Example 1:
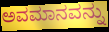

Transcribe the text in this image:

ಅವಮಾನವನ್ನು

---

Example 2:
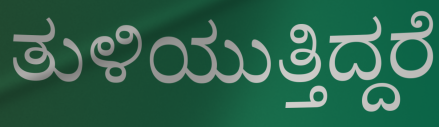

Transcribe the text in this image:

ತುಳಿಯುತ್ತಿದ್ದರೆ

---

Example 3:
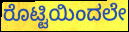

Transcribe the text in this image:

ರೊಟ್ಟಿಯಿಂದಲೇ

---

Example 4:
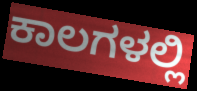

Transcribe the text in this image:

ಕಾಲಗಳಲ್ಲಿ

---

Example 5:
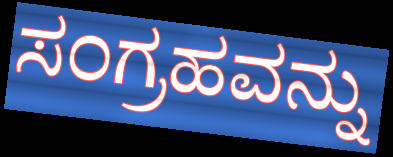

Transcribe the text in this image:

ಸಂಗ್ರಹವನ್ನು